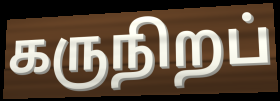
கருநிறப்